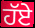
ਹੱਏ